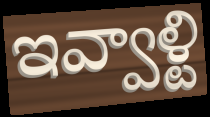
ఇవ్వాళ్టి